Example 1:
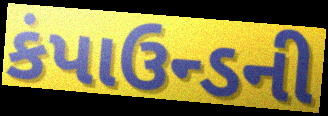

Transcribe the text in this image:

કંપાઉન્ડની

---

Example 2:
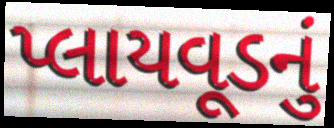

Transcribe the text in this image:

પ્લાયવૂડનું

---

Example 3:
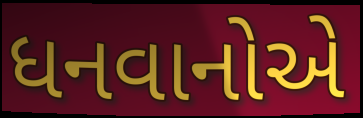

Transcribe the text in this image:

ધનવાનોએ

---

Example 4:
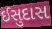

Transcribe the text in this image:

ઈસુદાસ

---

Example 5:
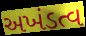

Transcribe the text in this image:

અખંડત્વ